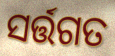
ସର୍ତ୍ତଗତ